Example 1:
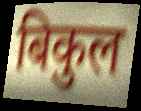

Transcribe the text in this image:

बिकुल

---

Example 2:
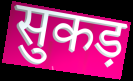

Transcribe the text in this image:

सुकड़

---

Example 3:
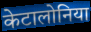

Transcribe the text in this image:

केटालोनिया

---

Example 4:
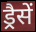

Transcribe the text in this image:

ड्रैसें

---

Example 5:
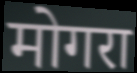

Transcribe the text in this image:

मोगरा